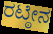
ರಟ್ಠೇನ